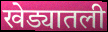
खेड्यातली